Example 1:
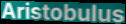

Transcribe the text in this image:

Aristobulus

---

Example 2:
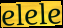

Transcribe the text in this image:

elele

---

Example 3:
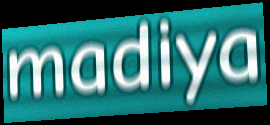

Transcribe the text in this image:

madiya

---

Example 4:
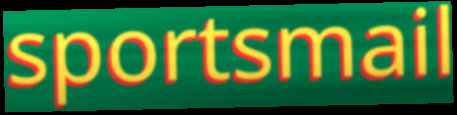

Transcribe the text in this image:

sportsmail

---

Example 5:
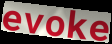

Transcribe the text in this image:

evoke